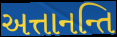
અત્તાનન્તિ